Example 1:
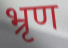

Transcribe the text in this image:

भ्रृण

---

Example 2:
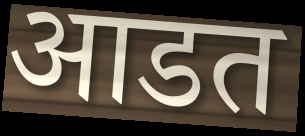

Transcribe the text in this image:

आडत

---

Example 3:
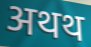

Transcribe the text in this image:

अथथ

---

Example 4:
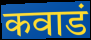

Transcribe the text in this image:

कवाडं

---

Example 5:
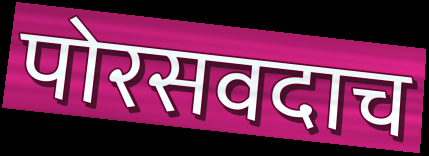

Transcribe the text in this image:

पोरसवदाच